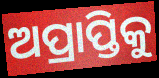
ଅପ୍ରାପ୍ତିକୁ